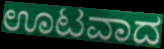
ಊಟವಾದ